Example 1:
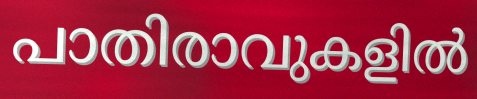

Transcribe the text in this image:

പാതിരാവുകളിൽ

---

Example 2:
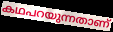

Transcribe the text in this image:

കഥപറയുന്നതാണ്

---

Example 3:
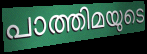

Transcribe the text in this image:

പാത്തിമയുടെ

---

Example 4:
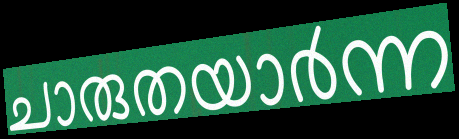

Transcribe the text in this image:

ചാരുതയാർന്ന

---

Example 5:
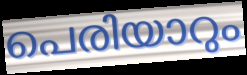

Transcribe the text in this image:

പെരിയാറും